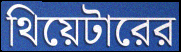
থিয়েটারের